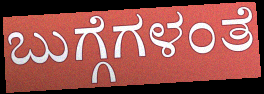
ಬುಗ್ಗೆಗಳಂತೆ